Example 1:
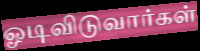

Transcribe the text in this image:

ஓடிவிடுவார்கள்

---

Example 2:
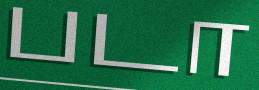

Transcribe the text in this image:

படா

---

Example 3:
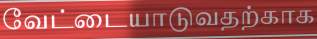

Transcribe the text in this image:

வேட்டையாடுவதற்காக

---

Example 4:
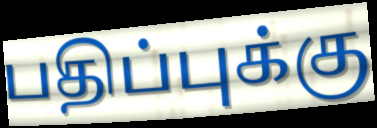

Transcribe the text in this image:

பதிப்புக்கு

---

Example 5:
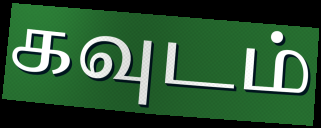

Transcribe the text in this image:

கவுடம்